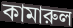
কামারুল